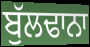
ਬੁੱਲਢਾਨਾ